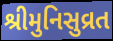
શ્રીમુનિસુવ્રત